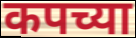
कपच्या